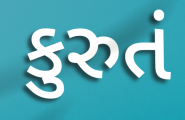
કુરુતં